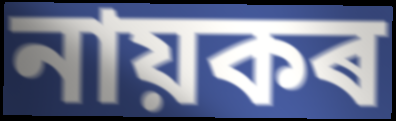
নায়কৰ